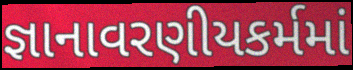
જ્ઞાનાવરણીયકર્મમાં